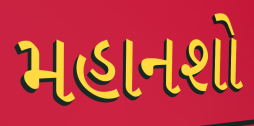
મહાનશો